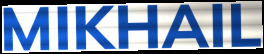
MIKHAIL